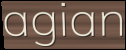
agian